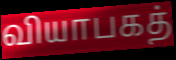
வியாபகத்